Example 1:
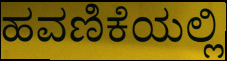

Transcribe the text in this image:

ಹವಣಿಕೆಯಲ್ಲಿ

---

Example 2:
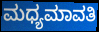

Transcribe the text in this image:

ಮಧ್ಯಮಾವತಿ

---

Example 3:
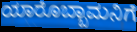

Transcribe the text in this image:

ಯಾರೊಬ್ಬಾಮನಿಗೆ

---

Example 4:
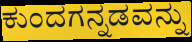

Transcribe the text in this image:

ಕುಂದಗನ್ನಡವನ್ನು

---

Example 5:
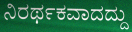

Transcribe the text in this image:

ನಿರರ್ಥಕವಾದದ್ದು